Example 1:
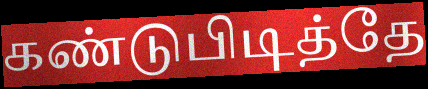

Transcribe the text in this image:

கண்டுபிடித்தே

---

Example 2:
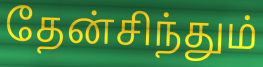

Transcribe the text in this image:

தேன்சிந்தும்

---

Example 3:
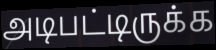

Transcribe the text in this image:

அடிபட்டிருக்க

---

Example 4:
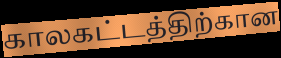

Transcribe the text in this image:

காலகட்டத்திற்கான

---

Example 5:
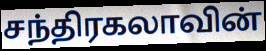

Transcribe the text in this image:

சந்திரகலாவின்